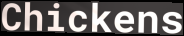
Chickens